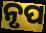
ନୃପ